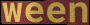
ween